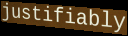
justifiably